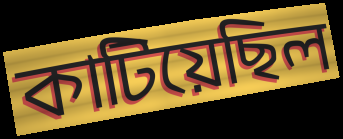
কাটিয়েছিল